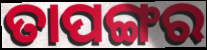
ତାପଙ୍ଗର